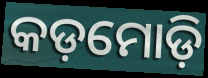
କଡ଼ମୋଡ଼ି